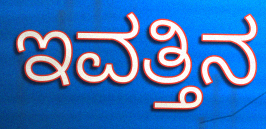
ಇವತ್ತಿನ